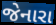
જેનારા